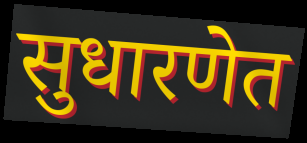
सुधारणेत